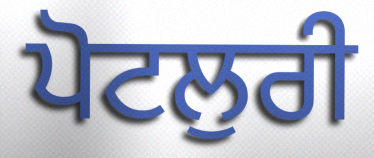
ਪੋਟਲੁਰੀ